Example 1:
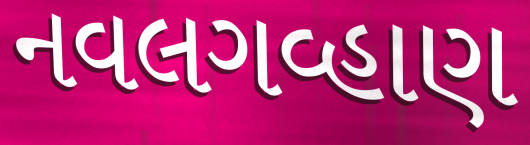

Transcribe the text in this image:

નવલગવ્હાણ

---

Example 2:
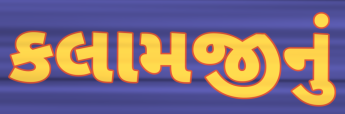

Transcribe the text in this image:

કલામજીનું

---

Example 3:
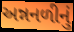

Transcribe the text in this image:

અન્નનળીનું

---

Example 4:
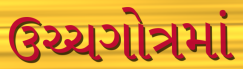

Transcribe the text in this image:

ઉચ્ચગોત્રમાં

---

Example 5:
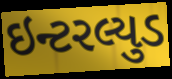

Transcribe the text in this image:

ઇન્ટરલ્યુડ